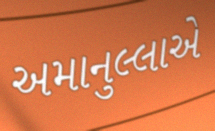
અમાનુલ્લાએ